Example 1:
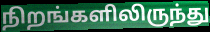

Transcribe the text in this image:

நிறங்களிலிருந்து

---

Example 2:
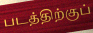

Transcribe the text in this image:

படத்திற்குப்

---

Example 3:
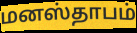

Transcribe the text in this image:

மனஸ்தாபம்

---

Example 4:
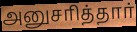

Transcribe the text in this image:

அனுசரித்தார்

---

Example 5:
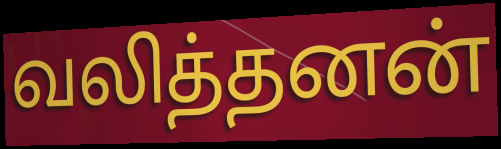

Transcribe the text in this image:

வலித்தனன்